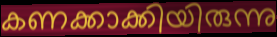
കണക്കാക്കിയിരുന്നു